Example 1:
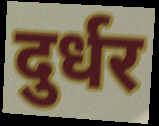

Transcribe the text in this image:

दुर्धर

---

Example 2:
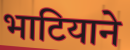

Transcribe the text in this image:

भाटियाने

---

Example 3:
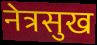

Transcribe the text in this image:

नेत्रसुख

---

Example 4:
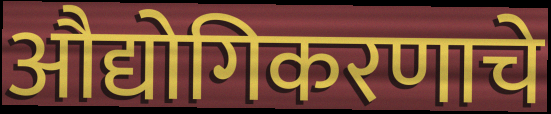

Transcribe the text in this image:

औद्योगिकरणाचे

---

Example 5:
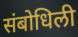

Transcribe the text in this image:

संबोधिली